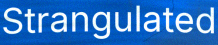
Strangulated